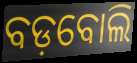
ବଡ଼ବୋଲି